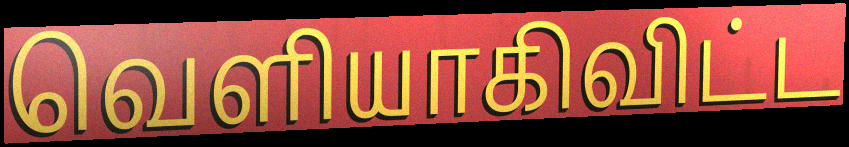
வெளியாகிவிட்ட